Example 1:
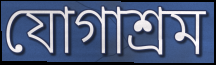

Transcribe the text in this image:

যোগাশ্রম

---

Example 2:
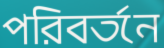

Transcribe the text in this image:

পরিবর্তনে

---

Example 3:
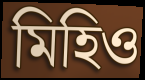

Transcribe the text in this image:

মিহিও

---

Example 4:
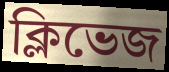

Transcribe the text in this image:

ক্লিভেজ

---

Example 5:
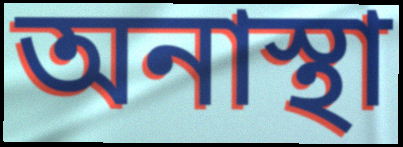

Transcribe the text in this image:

অনাস্থা